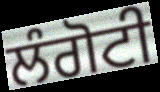
ਲੰਗੋਟੀ